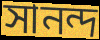
সানন্দ